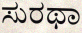
ಸುರಥಾ